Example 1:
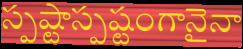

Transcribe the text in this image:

స్పష్టాస్పష్టంగానైనా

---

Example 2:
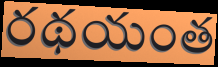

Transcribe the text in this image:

రథయంత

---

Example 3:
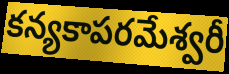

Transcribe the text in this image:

కన్యకాపరమేశ్వరీ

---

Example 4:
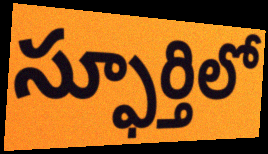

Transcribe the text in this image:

స్ఫూర్తిలో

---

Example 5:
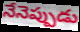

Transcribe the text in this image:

నేనెప్పుడు